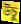
উচু